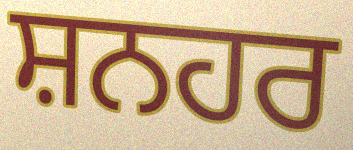
ਸ਼ਨਹਰ